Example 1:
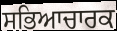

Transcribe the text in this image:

ਸਭਿਆਚਾਰਕ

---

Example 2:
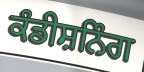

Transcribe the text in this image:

ਕੰਡੀਸ਼ਨਿੰਗ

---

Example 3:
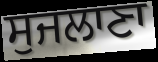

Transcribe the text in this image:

ਸੁਜਲਾਣਾ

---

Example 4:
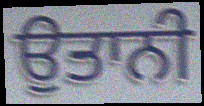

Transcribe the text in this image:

ਉਤਾਨੀ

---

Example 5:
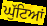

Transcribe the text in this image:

ਘੁੱਟਿਆਂ